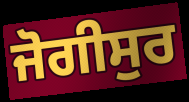
ਜੋਗੀਸੁਰ